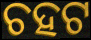
ଚହଟ